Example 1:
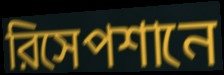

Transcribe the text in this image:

রিসেপশানে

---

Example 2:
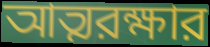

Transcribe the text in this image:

আত্মরক্ষার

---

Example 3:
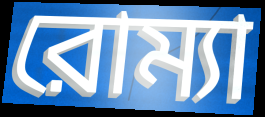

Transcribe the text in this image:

রোম্যা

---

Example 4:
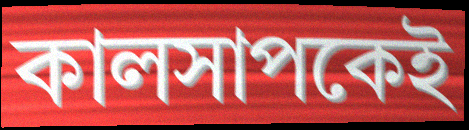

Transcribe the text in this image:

কালসাপকেই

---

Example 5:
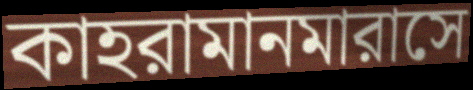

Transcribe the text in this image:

কাহরামানমারাসে